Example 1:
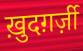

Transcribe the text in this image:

ख़ुदग़र्ज़ी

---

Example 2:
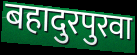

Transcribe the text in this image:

बहादुरपुरवा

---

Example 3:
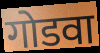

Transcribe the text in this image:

गोडवा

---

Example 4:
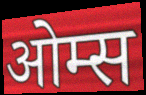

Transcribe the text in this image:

ओम्स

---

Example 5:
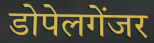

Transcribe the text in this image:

डोपेलगेंजर